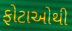
ફોટાઓથી